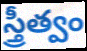
స్త్రీత్వం